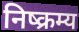
निष्क्रम्य